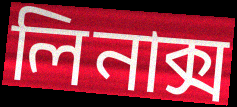
লিনাক্স